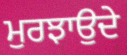
ਮੁਰਝਾਉਦੇ